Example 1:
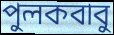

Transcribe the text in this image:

পুলকবাবু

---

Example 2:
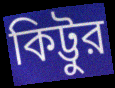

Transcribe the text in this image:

কিট্টুর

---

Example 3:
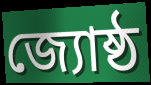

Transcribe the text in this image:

জ্যোষ্ঠ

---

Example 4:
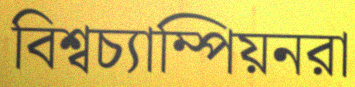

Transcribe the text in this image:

বিশ্বচ্যাম্পিয়নরা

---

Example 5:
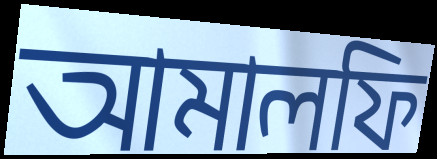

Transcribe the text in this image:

আমালফি